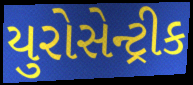
યુરોસેન્ટ્રીક